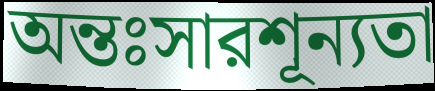
অন্তঃসারশূন্যতা